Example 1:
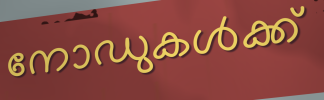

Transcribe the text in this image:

നോഡുകൾക്ക്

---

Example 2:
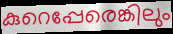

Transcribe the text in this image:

കുറെപ്പേരെങ്കിലും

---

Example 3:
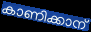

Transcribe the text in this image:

കാണിക്കാന്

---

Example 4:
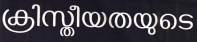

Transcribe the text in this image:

ക്രിസ്തീയതയുടെ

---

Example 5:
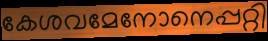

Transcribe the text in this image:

കേശവമേനോനെപ്പറ്റി